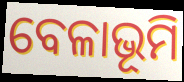
ବେଳାଭୂମି